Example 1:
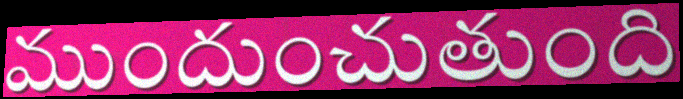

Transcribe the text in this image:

ముందుంచుతుంది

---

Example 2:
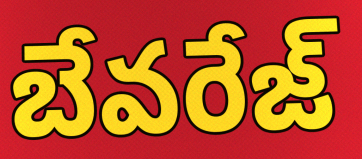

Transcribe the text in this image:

బేవరేజ్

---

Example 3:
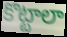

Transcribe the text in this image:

కొట్టాలా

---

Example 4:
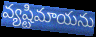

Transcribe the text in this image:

వ్యష్టిమాయను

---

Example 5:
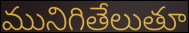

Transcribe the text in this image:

మునిగితేలుతూ